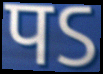
पऽ